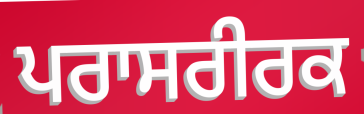
ਪਰਾਸਰੀਰਕ